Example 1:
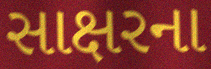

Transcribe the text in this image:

સાક્ષરના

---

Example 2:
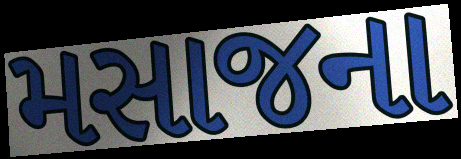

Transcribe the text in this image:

મસાજના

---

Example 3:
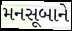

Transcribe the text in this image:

મનસૂબાને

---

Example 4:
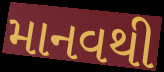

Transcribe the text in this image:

માનવથી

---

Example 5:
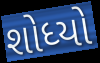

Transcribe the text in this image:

શોધ્યો